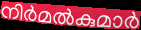
നിർമൽകുമാർ